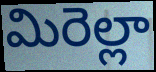
మిరెల్లా